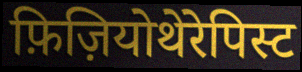
फ़िज़ियोथेरेपिस्ट